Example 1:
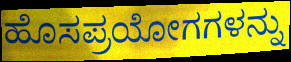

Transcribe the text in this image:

ಹೊಸಪ್ರಯೋಗಗಳನ್ನು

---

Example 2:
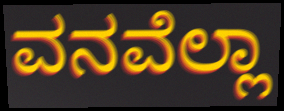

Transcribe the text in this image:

ವನವೆಲ್ಲಾ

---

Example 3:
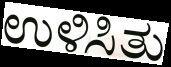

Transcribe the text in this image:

ಉಳಿಸಿತು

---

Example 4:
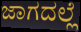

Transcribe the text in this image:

ಜಾಗದಲ್ಲೆ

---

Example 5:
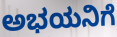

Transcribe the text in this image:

ಅಭಯನಿಗೆ